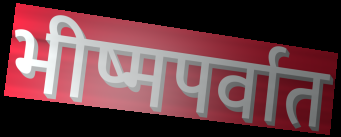
भीष्मपर्वात